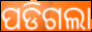
ପଡିଗଲା